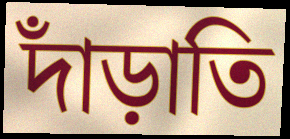
দাঁড়াতি